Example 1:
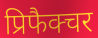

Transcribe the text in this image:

प्रिफैक्चर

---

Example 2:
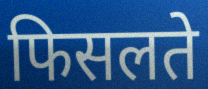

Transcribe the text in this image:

फिसलते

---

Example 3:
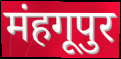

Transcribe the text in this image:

मंहगूपुर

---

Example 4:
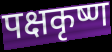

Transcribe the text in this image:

पक्षकृष्ण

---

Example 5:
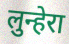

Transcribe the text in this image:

लुन्हेरा